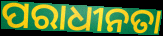
ପରାଧୀନତା